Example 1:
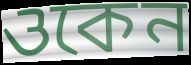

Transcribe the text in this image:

ওকেন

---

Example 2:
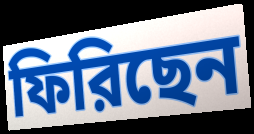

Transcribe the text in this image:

ফিরিছেন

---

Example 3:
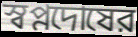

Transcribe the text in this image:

স্বপ্নদোষের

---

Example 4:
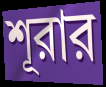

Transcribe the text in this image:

শূরার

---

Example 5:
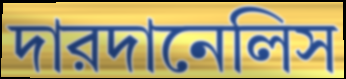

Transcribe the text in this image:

দারদানেলিস